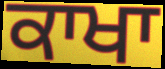
ਕਾਖਾ